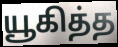
யூகித்த